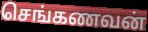
செங்கணவன்